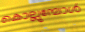
കൊല്ലുമ്പോൾ